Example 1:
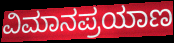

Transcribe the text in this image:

ವಿಮಾನಪ್ರಯಾಣ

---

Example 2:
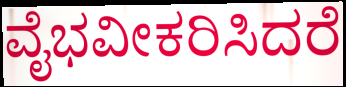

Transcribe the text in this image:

ವೈಭವೀಕರಿಸಿದರೆ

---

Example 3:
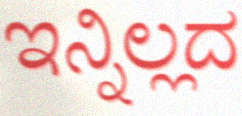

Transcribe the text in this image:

ಇನ್ನಿಲ್ಲದ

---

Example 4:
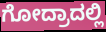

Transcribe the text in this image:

ಗೋದ್ರಾದಲ್ಲಿ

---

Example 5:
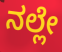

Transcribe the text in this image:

ನಲ್ಲೇ